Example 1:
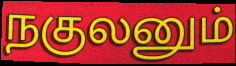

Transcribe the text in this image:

நகுலனும்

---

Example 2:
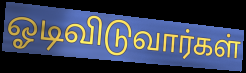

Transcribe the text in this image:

ஓடிவிடுவார்கள்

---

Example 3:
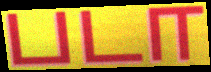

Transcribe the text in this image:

படா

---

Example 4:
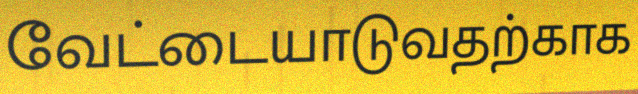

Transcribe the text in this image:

வேட்டையாடுவதற்காக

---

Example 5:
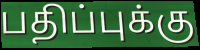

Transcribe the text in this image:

பதிப்புக்கு